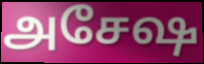
அசேஷ